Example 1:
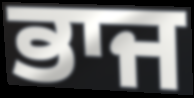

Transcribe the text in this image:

ਭਾਜ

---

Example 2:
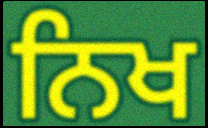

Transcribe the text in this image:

ਨਿਖ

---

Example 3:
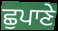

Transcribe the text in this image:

ਛੁਪਾਣੇ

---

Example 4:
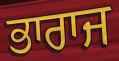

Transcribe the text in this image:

ਭਾਰਾਜ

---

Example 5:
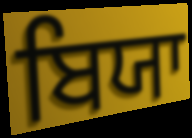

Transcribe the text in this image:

ਬਿਯਾ